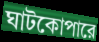
ঘাটকোপারে